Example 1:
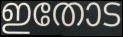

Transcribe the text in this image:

ഇതോട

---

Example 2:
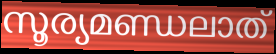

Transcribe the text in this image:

സൂര്യമണ്ഡലാത്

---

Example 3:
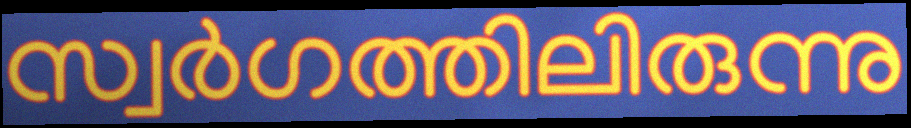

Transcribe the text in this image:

സ്വർഗത്തിലിരുന്നു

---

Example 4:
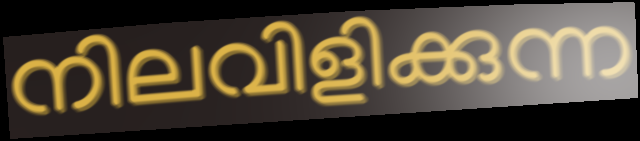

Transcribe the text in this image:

നിലവിളിക്കുന്ന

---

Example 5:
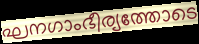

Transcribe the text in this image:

ഘനഗാംഭീര്യത്തോടെ